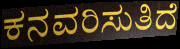
ಕನವರಿಸುತಿದೆ